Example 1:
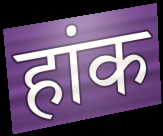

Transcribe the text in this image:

हांक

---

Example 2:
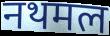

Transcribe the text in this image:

नथमल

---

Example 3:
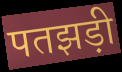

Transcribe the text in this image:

पतझड़ी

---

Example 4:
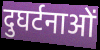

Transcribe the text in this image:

दुघर्टनाओं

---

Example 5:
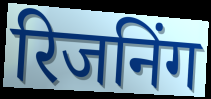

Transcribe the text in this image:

रिजनिंग